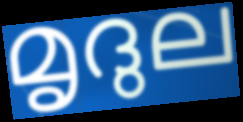
മൃദുല